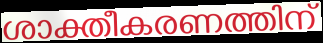
ശാക്തീകരണത്തിന്